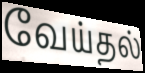
வேய்தல்